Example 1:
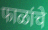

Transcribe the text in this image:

फाळांचे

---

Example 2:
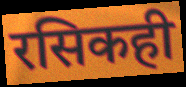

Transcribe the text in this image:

रसिकही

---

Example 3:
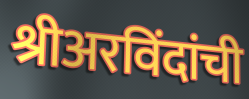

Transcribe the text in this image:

श्रीअरविंदांची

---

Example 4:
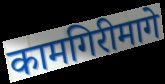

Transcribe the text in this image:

कामगिरीमागे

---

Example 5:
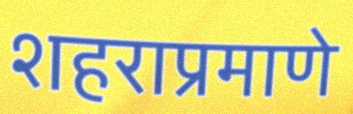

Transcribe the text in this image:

शहराप्रमाणे